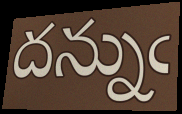
దన్నుఁ